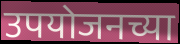
उपयोजनच्या